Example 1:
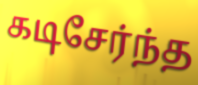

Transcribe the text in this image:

கடிசேர்ந்த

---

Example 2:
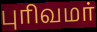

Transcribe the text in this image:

புரிவமர்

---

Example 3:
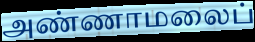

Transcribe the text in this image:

அண்ணாமலைப்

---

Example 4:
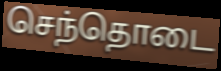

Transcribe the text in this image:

செந்தொடை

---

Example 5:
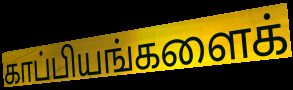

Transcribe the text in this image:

காப்பியங்களைக்